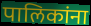
पालिकांना